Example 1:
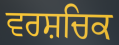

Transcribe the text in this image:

ਵਰਸ਼ਚਿਕ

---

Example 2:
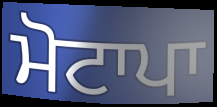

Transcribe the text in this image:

ਮੋਟਾਪਾ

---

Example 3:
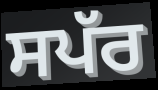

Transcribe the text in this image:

ਸਪੱਰ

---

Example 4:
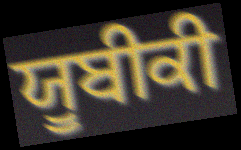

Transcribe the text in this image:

ਯੂਬੀਕੀ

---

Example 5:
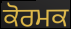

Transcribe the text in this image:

ਕੋਰਮਕ